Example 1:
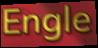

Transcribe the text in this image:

Engle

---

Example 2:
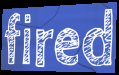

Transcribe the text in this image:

fired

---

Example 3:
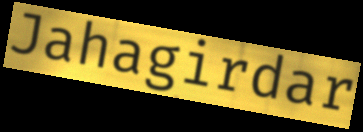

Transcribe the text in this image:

Jahagirdar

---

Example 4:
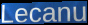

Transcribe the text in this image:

Lecanu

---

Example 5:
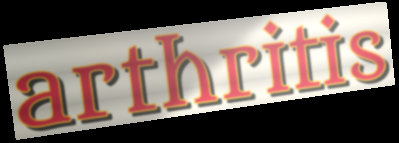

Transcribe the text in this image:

arthritis